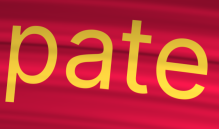
pate